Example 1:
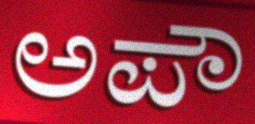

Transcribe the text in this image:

ಅಪೌ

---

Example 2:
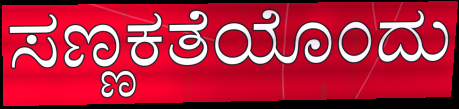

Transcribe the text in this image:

ಸಣ್ಣಕತೆಯೊಂದು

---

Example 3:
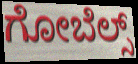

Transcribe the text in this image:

ಗೋಬೆಲ್ಸ್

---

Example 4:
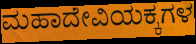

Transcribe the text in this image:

ಮಹಾದೇವಿಯಕ್ಕಗಳ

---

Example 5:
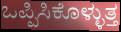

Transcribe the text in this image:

ಒಪ್ಪಿಸಿಕೊಳ್ಳುತ್ತ